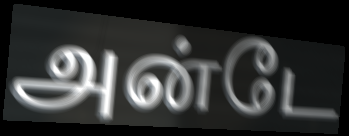
அன்டே